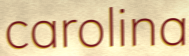
carolina